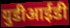
युडीआईडी